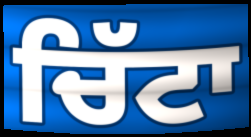
ਚਿੱਟਾ